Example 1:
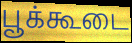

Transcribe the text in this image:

பூக்கூடை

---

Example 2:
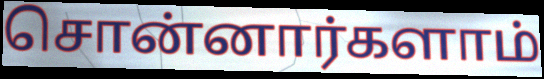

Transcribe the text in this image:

சொன்னார்களாம்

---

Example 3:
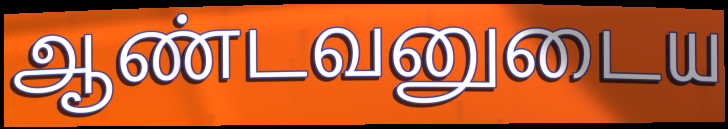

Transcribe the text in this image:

ஆண்டவனுடைய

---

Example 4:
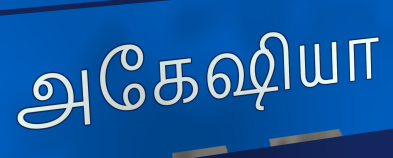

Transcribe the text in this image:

அகேஷியா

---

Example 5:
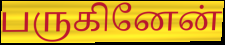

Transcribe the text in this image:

பருகினேன்